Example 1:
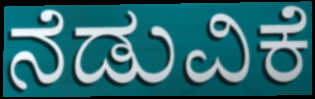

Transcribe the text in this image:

ನೆಡುವಿಕೆ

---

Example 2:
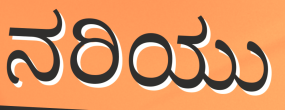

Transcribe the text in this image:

ನರಿಯು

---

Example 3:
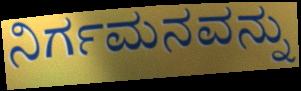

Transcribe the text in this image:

ನಿರ್ಗಮನವನ್ನು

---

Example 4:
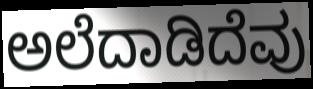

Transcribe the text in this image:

ಅಲೆದಾಡಿದೆವು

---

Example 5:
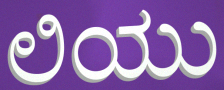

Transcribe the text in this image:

ಲಿಯು